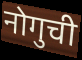
नोगुची